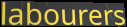
labourers